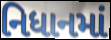
નિધાનમાં